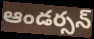
ఆండర్సన్